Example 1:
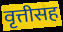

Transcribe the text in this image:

वृत्तीसह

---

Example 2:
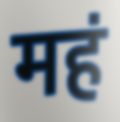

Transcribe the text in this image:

महं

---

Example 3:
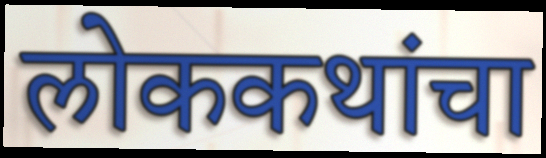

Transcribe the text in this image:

लोककथांचा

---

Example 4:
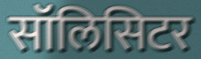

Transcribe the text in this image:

सॉलिसिटर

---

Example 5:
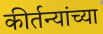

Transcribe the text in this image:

कीर्तन्यांच्या